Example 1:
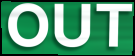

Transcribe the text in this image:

OUT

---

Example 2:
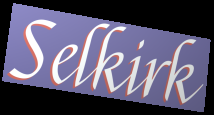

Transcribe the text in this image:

Selkirk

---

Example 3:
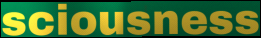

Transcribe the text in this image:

sciousness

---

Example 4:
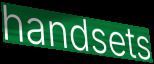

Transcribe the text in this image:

handsets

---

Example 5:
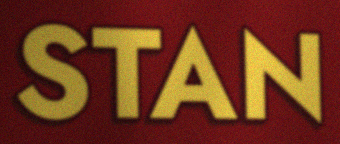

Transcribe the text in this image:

STAN